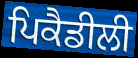
ਪਿਕੈਡੀਲੀ